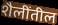
शैलींतील